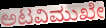
ಅಟವಿಮುಖೇ